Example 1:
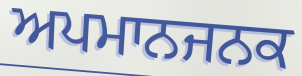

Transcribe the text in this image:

ਅਪਮਾਨਜਨਕ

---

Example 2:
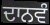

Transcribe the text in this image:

ਦਾਨਵੰ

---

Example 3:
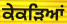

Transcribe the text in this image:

ਕੇਕੜਿਆਂ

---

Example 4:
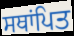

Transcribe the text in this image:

ਸਥਾਂਪਿਤ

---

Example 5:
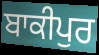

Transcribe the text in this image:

ਬਾਕੀਪੁਰ